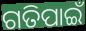
ଗତିପାଇଁ